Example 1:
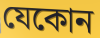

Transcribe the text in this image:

যেকোন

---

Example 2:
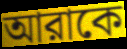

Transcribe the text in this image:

আরাকে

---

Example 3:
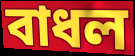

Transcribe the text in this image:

বাধল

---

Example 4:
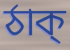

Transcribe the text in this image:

ঠাক্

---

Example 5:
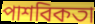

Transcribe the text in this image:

পাশবিকতা